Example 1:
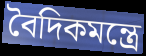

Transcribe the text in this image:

বৈদিকমন্ত্রে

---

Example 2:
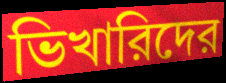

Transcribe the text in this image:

ভিখারিদের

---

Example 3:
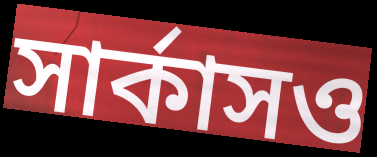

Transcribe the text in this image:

সার্কাসও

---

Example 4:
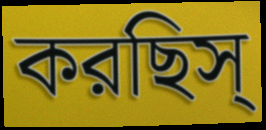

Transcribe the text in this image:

করছিস্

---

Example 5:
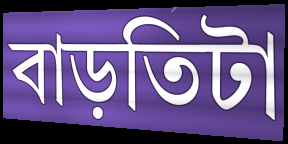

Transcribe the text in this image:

বাড়তিটা